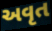
અવૃત